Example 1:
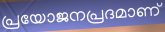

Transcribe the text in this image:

പ്രയോജനപ്രദമാണ്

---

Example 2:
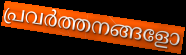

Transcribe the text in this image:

പ്രവർത്തനങ്ങളോ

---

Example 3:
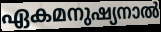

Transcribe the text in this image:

ഏകമനുഷ്യനാൽ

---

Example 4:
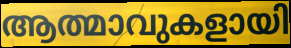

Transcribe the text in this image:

ആത്മാവുകളായി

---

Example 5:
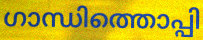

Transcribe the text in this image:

ഗാന്ധിത്തൊപ്പി